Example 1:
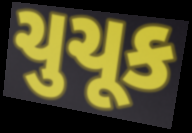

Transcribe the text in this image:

ચુચૂક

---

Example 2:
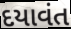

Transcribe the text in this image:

દયાવંત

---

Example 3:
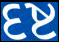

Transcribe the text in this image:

દષ્ટ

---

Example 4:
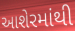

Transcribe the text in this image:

આશેરમાંથી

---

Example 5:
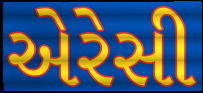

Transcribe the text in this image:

એરેસી